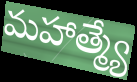
మహాత్మ్యే